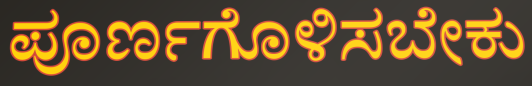
ಪೂರ್ಣಗೊಳಿಸಬೇಕು